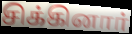
சிக்கினார்